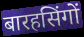
बारहसिंगों